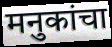
मनुकांचा